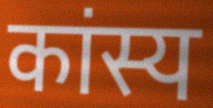
कांस्य